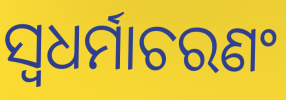
ସ୍ୱଧର୍ମାଚରଣଂ